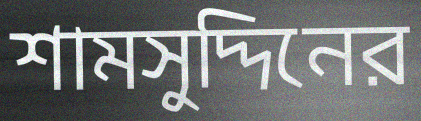
শামসুদ্দিনের